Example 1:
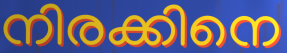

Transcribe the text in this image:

നിരക്കിനെ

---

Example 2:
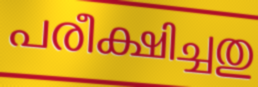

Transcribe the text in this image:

പരീക്ഷിച്ചതു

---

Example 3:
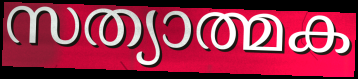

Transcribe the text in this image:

സത്യാത്മക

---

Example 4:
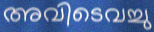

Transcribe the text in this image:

അവിടെവച്ചു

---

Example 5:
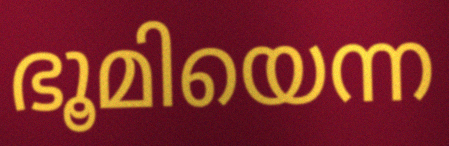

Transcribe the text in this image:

ഭൂമിയെന്ന